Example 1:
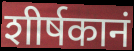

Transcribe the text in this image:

शीर्षकानं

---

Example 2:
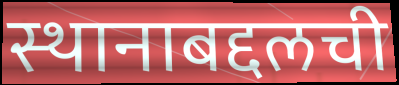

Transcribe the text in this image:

स्थानाबद्दलची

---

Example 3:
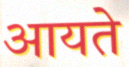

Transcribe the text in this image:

आयते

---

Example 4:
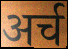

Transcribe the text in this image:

अर्च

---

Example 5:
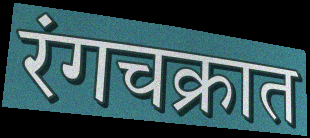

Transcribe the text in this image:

रंगचक्रात